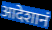
आदेशानं